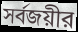
সর্বজয়ীর